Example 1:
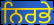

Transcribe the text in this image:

ਨਿਰਭੇ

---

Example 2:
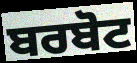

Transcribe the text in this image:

ਬਰਬੋਟ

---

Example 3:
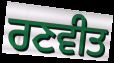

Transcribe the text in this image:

ਰਣਵੀਤ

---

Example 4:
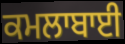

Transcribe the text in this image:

ਕਮਲਾਬਾਈ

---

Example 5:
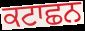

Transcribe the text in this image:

ਕਟਾਛਨ